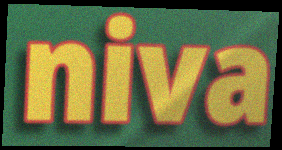
niva